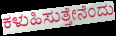
ಕಳುಹಿಸುತ್ತೇನೆಂದು